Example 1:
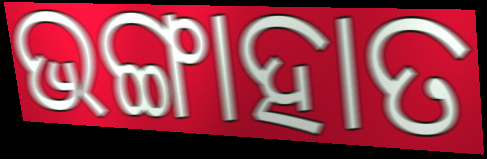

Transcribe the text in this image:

ଭଙ୍ଗାହାତ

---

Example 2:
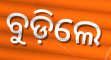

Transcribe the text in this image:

ବୁଡ଼ିଲେ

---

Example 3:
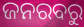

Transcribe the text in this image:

ଜନରବରୁ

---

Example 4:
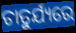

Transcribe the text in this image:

ଚାତୁର୍ଯ୍ୟରେ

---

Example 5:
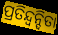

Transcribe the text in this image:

ପ୍ରତିନ୍ଦ୍ବନ୍ଦିତା